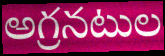
అగ్రనటుల